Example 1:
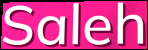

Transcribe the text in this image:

Saleh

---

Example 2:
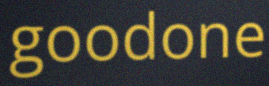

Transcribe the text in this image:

goodone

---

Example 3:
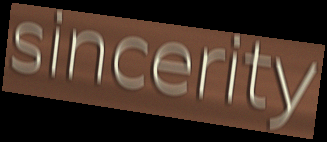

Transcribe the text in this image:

sincerity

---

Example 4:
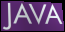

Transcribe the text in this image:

JAVA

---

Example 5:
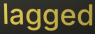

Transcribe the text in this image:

lagged